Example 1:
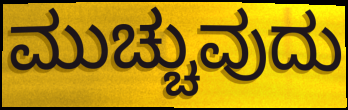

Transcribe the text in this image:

ಮುಚ್ಚುವುದು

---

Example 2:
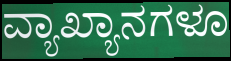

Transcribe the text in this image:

ವ್ಯಾಖ್ಯಾನಗಳೂ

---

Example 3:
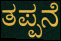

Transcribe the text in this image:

ತಪ್ಪನೆ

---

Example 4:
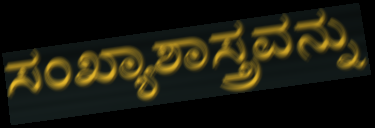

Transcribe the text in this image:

ಸಂಖ್ಯಾಶಾಸ್ತ್ರವನ್ನು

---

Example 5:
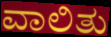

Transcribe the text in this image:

ವಾಲಿತು